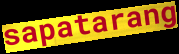
sapatarang